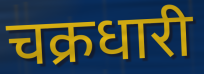
चक्रधारी